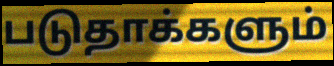
படுதாக்களும்